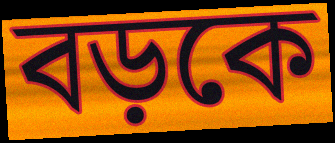
বড়কে